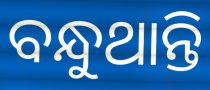
ବନ୍ଧୁଥାନ୍ତି